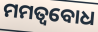
ମମତ୍ବବୋଧ